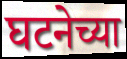
घटनेच्या